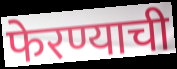
फेरण्याची